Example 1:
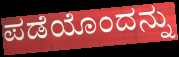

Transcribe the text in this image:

ಪಡೆಯೊಂದನ್ನು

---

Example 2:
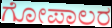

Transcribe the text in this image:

ಗೋಪಾಲರ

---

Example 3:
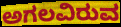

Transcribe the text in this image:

ಅಗಲವಿರುವ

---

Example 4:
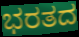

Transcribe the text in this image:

ಭರತದ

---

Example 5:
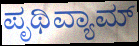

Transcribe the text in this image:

ಪೃಥಿವ್ಯಾಮ್